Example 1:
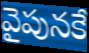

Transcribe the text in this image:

వైపునకే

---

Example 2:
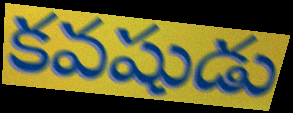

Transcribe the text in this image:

కవషుడు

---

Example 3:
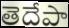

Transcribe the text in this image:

తెదేపా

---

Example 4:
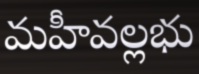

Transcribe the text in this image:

మహీవల్లభు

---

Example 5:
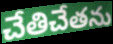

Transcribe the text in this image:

చేతిచేతను